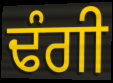
ਢੰਗੀ